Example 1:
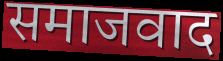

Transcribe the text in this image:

समाजवाद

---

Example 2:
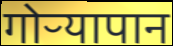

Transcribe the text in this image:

गोऱ्यापान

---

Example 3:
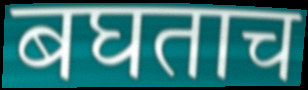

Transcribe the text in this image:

बघताच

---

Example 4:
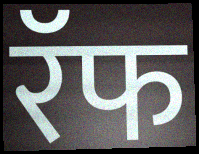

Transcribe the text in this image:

रॅफ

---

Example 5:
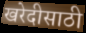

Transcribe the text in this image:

खरेदीसाठी